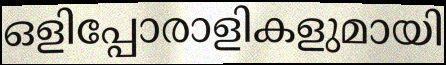
ഒളിപ്പോരാളികളുമായി